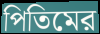
পিতিমের